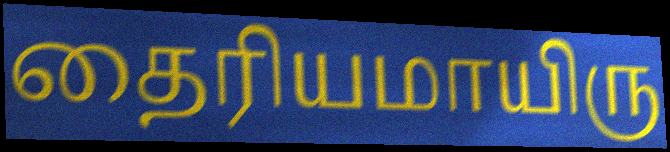
தைரியமாயிரு